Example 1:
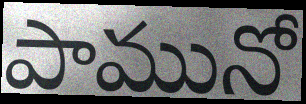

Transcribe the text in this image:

పామునో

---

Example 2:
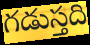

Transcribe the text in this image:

గడుస్తది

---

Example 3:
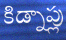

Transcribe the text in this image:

కిడ్నాప్లు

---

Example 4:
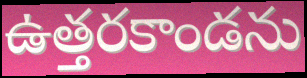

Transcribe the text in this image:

ఉత్తరకాండను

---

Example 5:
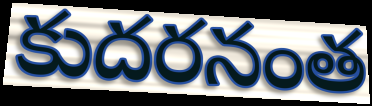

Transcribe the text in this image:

కుదరనంత